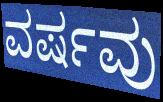
ವರ್ಷವು